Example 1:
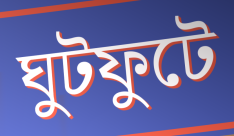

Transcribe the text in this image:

ঘুটফুটে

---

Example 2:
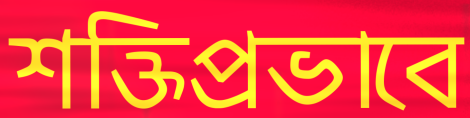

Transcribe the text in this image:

শক্তিপ্রভাবে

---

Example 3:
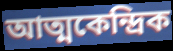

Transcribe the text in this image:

আত্মকেন্দ্রিক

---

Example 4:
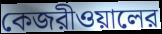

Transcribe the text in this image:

কেজরীওয়ালের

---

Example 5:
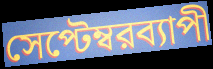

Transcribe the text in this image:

সেপ্টেম্বরব্যাপী